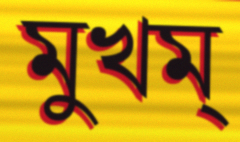
মুখম্